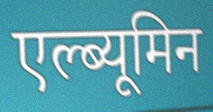
एल्ब्यूमिन